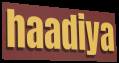
haadiya